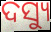
ଦସ୍ୟୁ